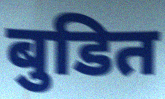
बुडित